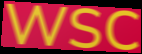
WSC